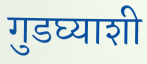
गुडघ्याशी